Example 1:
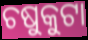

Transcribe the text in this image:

ଚଷୁକୁଟା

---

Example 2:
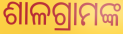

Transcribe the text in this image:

ଶାଳଗ୍ରାମଙ୍କ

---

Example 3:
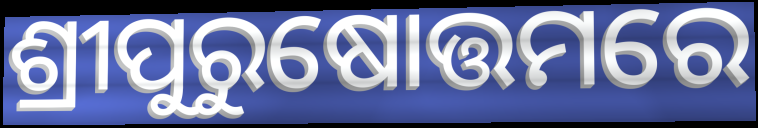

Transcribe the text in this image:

ଶ୍ରୀପୁରୁଷୋତ୍ତମରେ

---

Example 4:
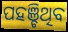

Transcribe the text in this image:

ପହଞ୍ଚିଥିବ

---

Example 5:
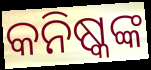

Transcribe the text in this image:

କନିଷ୍କଙ୍କ